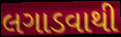
લગાડવાથી